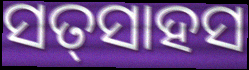
ସତ୍‍ସାହସ